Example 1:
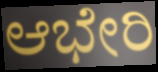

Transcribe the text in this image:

ಆಭೇರಿ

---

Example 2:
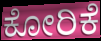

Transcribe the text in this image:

ಕೋರಿಕೆ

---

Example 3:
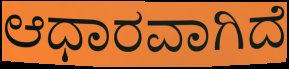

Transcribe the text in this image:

ಆಧಾರವಾಗಿದೆ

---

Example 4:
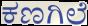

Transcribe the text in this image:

ಕಣಗಿಲೆ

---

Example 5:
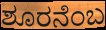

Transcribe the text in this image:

ಶೂರನೆಂಬ